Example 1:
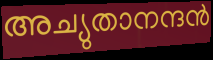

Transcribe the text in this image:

അച്യുതാനന്ദൻ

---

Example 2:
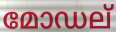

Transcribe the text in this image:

മോഡല്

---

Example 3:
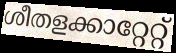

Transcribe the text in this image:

ശീതളക്കാറ്റേറ്റ്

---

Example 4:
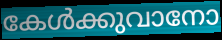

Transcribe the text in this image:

കേൾക്കുവാനോ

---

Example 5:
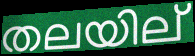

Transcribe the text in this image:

തലയില്